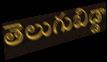
తెలుగుబిడ్డా